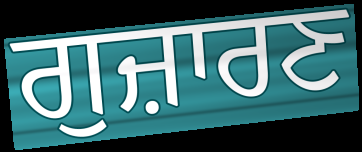
ਗੁਜ਼ਾਰਣ